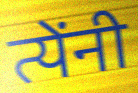
त्येंनी